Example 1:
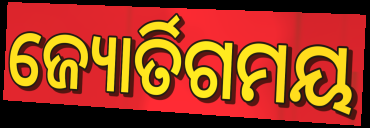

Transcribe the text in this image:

ଜ୍ୟୋର୍ତିଗମୟ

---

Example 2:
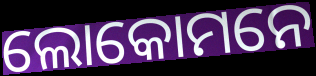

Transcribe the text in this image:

ଲୋକୋମନେ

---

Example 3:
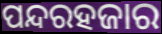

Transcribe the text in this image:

ପନ୍ଦରହଜାର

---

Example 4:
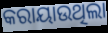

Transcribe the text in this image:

କରାୟାଉଥିଲା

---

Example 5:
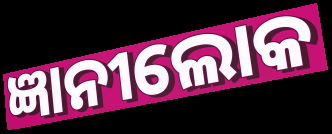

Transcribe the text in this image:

ଜ୍ଞାନୀଲୋକ